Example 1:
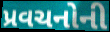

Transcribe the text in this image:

પ્રવચનોની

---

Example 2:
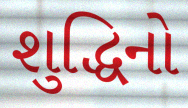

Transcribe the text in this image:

શુદ્ધિનો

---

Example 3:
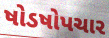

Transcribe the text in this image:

ષોડષોપચાર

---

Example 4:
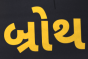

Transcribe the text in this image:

બ્રોથ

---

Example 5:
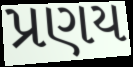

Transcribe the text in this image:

પ્રણય